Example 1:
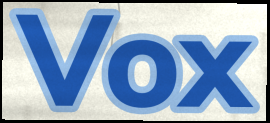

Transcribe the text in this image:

Vox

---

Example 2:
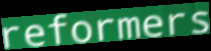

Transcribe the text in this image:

reformers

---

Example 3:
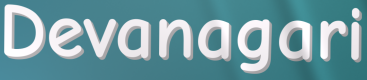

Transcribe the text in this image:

Devanagari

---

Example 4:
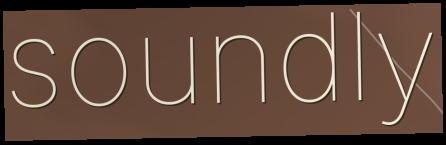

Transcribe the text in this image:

soundly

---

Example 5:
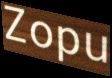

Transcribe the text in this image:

Zopu